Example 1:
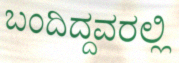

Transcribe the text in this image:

ಬಂದಿದ್ದವರಲ್ಲಿ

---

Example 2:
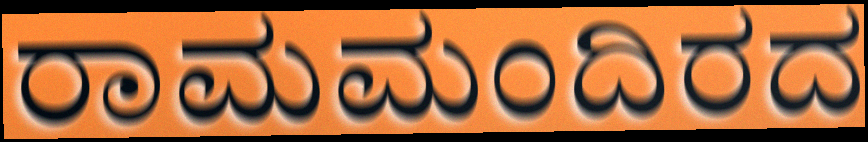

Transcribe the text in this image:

ರಾಮಮಂದಿರದ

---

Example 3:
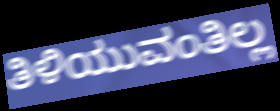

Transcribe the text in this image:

ತಿಳಿಯುವಂತಿಲ್ಲ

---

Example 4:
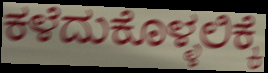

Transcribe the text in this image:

ಕಳೆದುಕೊಳ್ಳಲಿಕ್ಕೆ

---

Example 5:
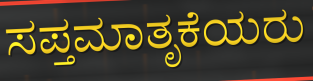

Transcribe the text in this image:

ಸಪ್ತಮಾತೃಕೆಯರು